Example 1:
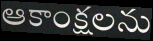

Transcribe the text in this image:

ఆకాంక్షలను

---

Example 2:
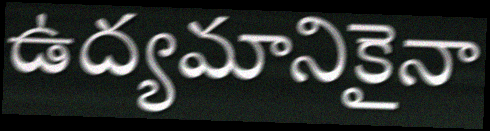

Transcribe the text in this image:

ఉద్యమానికైనా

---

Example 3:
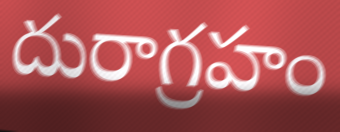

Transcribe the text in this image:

దురాగ్రహం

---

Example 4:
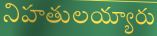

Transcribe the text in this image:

నిహతులయ్యారు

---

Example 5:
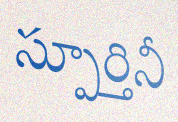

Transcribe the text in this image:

స్పూర్తినీ